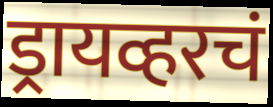
ड्रायव्हरचं